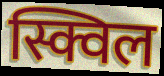
स्क्विल